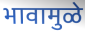
भावामुळे